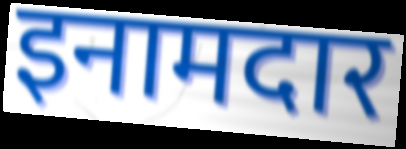
इनामदार